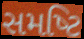
સમષ્‍ટિ